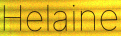
Helaine